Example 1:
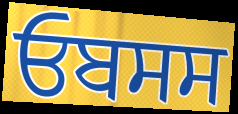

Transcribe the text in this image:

ਓਬਸਸ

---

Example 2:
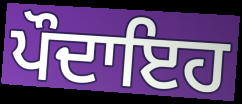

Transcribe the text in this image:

ਪੌਦਾਇਹ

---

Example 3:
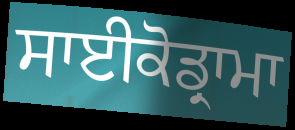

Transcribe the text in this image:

ਸਾਈਕੋਡ੍ਰਾਮਾ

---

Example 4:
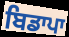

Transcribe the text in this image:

ਬਿਡਾਪਾ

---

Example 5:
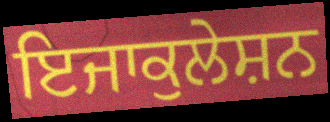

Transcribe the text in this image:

ਇਜਾਕੁਲੇਸ਼ਨ